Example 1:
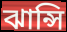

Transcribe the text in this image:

ঝান্সি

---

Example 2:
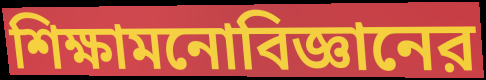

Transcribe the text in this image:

শিক্ষামনোবিজ্ঞানের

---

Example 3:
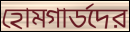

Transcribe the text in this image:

হোমগার্ডদের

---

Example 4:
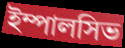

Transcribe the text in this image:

ইম্পালসিভ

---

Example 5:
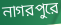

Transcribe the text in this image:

নাগরপুরে